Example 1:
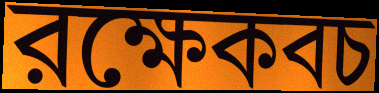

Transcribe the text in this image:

রক্ষেকবচ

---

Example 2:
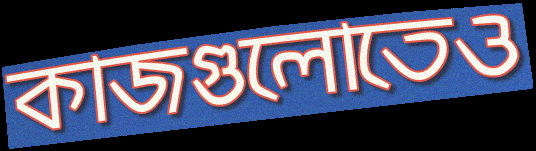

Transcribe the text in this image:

কাজগুলোতেও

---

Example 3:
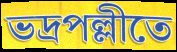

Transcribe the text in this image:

ভদ্রপল্লীতে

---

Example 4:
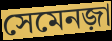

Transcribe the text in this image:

সেমেনজ়া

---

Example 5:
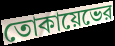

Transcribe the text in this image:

তোকায়েভের